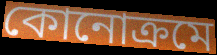
কোনোক্রমে